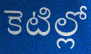
కెటిల్లో